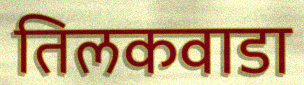
तिलकवाडा